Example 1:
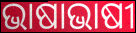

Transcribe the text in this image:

ଭାଷାଭାଷୀ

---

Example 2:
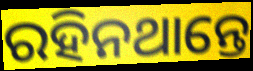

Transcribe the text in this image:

ରହିନଥାନ୍ତେ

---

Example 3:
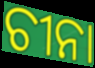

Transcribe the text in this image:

ଚୀନା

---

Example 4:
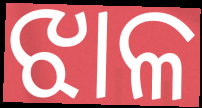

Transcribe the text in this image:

ଝାଳ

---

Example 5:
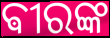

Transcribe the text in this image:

ଵୀରଙ୍କ